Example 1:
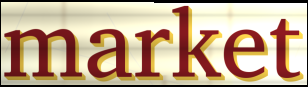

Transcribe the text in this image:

market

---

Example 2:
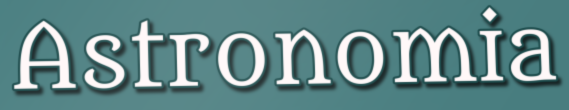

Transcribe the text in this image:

Astronomia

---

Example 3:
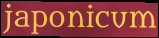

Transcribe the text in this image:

japonicum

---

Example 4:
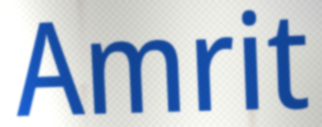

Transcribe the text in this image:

Amrit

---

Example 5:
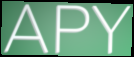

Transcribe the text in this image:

APY